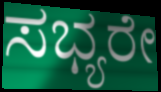
ಸಭ್ಯರೇ